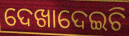
ଦେଖାଦେଇଚି